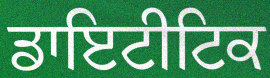
ਡਾਇਟੀਟਿਕ